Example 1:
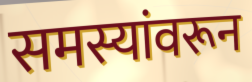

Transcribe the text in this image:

समस्यांवरून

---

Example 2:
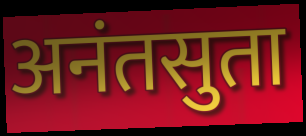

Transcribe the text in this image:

अनंतसुता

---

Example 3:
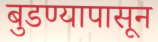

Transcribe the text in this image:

बुडण्यापासून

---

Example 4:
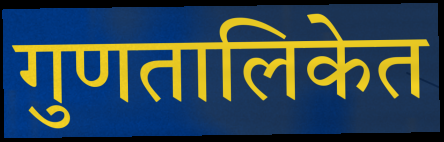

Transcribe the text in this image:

गुणतालिकेत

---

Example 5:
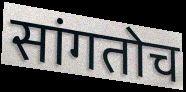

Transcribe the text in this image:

सांगतोच